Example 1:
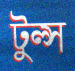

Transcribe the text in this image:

টুল্স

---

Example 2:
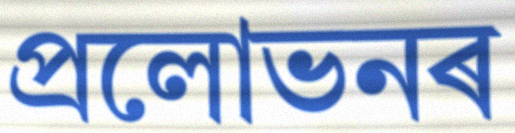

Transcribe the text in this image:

প্ৰলোভনৰ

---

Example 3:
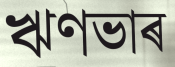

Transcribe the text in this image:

ঋণভাৰ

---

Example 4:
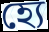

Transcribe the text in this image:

হ্যে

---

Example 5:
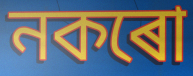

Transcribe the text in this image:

নকৰো